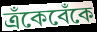
ত্রঁকেবেঁকে